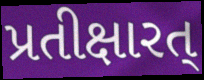
પ્રતીક્ષારત્